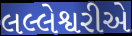
લલ્લેશ્વરીએ